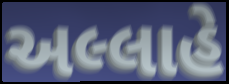
અલ્લાહે